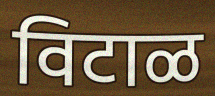
विटाळ